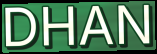
DHAN